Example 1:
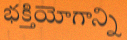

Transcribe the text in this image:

భక్తియోగాన్ని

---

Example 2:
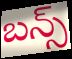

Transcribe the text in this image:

బన్స్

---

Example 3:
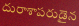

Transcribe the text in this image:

దురాశాపరుడైన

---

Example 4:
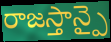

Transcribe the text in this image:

రాజస్తాన్పై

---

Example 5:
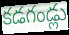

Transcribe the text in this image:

కడగండ్లు